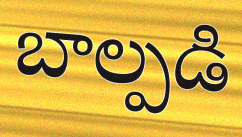
బాల్పడి